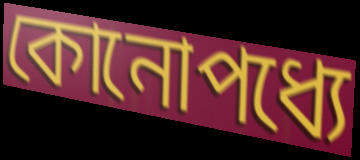
কোনোপধ্যে